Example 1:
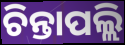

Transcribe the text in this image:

ଚିନ୍ତାପଲ୍ଲି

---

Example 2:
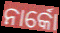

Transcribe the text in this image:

ନାର୍କୋ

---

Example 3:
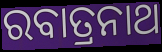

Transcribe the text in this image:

ରବାତ୍ରନାଥ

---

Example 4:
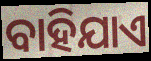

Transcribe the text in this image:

ବାହିଯାଏ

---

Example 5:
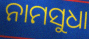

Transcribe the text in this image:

ନାମସୁଧା